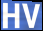
HV